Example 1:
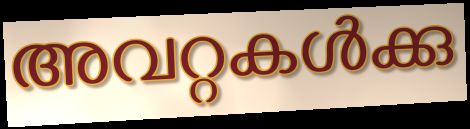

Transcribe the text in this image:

അവറ്റകൾക്കു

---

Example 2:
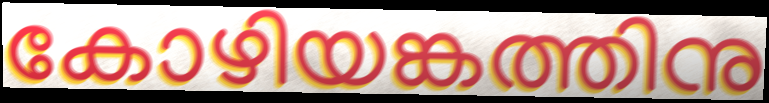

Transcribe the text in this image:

കോഴിയങ്കത്തിനു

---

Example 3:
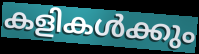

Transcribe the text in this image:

കളികൾക്കും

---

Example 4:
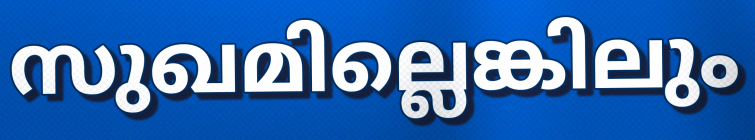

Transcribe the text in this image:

സുഖമില്ലെങ്കിലും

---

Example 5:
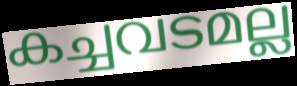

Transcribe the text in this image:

കച്ചവടമല്ല